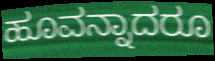
ಹೂವನ್ನಾದರೂ